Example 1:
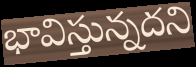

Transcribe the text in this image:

భావిస్తున్నదని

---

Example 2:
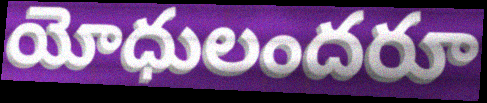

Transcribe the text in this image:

యోధులందరూ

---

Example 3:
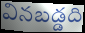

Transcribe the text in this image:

వినబడ్డది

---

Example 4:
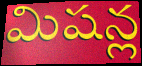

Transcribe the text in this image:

మిషన్ల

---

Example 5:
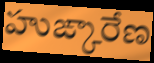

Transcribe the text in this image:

హుఙ్కారేణ